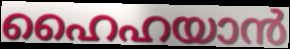
ഹൈഹയാൻ